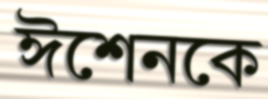
ঈশেনকে